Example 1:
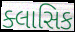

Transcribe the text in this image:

ક્લાસિક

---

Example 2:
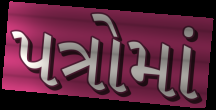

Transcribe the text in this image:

પત્રોમાં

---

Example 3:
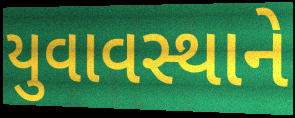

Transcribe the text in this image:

યુવાવસ્થાને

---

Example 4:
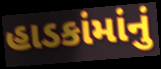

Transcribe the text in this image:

હાડકાંમાંનું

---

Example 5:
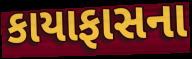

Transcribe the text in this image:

કાયાફાસના